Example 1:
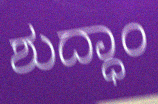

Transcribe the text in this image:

ಶುದ್ಧಾಂ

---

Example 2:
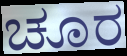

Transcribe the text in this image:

ಚೂರ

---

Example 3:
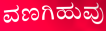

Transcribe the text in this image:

ವಣಗಿಹುವು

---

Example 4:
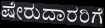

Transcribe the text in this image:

ಷೇರುದಾರರಿಗೆ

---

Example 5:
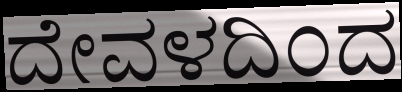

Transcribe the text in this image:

ದೇವಳದಿಂದ